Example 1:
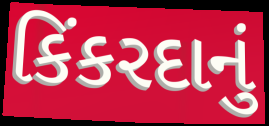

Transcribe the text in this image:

કિંકરદાનું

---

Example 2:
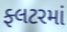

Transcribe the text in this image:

ફ્લટરમાં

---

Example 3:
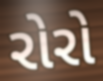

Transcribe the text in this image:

રોરો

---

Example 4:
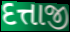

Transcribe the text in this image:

દત્તાજી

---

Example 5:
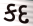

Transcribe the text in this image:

કદ